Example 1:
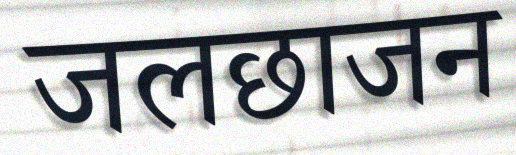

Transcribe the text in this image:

जलछाजन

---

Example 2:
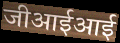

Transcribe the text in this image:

जीआईआई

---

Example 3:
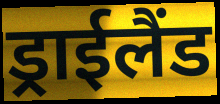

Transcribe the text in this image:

ड्राईलैंड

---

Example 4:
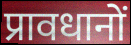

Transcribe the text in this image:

प्रावधानों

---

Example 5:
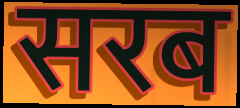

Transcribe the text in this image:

सरब